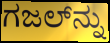
ಗಜಲ್‍ನ್ನು